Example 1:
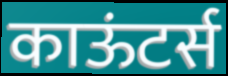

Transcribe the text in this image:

काऊंटर्स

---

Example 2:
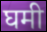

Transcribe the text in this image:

घमी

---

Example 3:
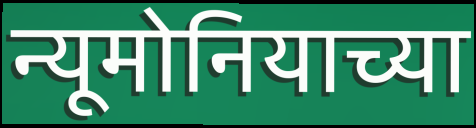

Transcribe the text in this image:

न्यूमोनियाच्या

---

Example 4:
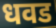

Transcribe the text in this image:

धवड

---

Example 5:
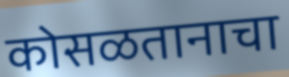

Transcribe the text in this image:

कोसळतानाचा